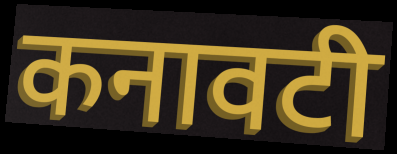
कनावटी